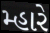
મ્હારે